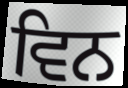
ਵਿਨ